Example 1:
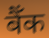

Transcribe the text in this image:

बैँक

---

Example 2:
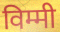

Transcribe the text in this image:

विम्मी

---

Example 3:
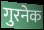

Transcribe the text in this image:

गुरनेक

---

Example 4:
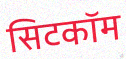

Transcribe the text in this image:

सिटकॉम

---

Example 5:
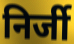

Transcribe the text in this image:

निर्जी